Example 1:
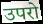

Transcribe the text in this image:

उपरो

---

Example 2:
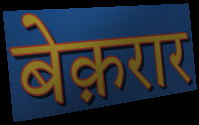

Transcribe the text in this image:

बेक़रार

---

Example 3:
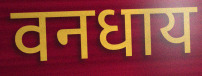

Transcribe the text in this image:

वनधाय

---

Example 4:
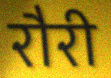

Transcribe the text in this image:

रौरी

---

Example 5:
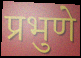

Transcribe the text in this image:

प्रभुणे